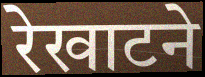
रेखाटने